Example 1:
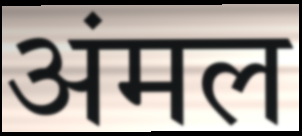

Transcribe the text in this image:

अंमल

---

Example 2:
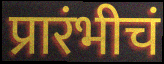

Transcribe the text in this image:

प्रारंभीचं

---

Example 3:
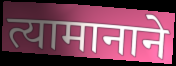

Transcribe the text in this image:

त्यामानाने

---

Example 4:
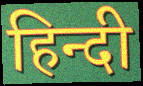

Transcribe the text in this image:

हिन्दी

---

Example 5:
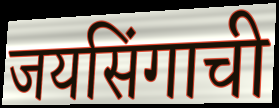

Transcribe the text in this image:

जयसिंगाची